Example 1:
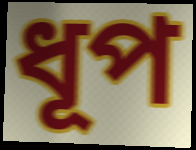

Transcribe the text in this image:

ধূপ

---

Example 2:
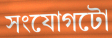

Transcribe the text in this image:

সংযোগটো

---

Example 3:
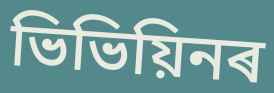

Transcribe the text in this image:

ভিভিয়িনৰ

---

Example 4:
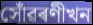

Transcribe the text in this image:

সোঁৱৰণীখন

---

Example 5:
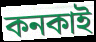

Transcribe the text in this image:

কনকাই